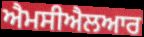
ਐਮਸੀਐਲਆਰ